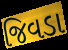
જિવડા